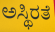
ಅಸ್ಥಿರತೆ